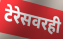
टेरेसवरही